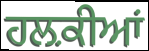
ਹਲ਼ਕੀਆਂ